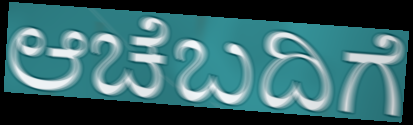
ಆಚೆಬದಿಗೆ